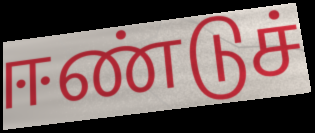
ஈண்டுச்